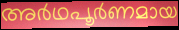
അർഥപൂർണമായ